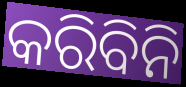
କରିବିନି